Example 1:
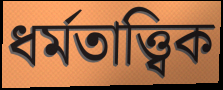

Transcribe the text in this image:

ধর্মতাত্ত্বিক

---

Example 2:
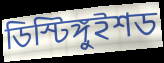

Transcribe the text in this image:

ডিস্টিঙ্গুইশড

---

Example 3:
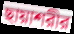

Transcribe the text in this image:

ছায়াশরীর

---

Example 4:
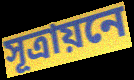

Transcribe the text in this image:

সূত্রায়নে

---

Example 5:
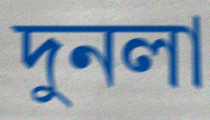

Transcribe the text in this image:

দুনলা